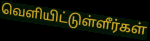
வெளியிட்டுள்ளீர்கள்